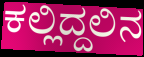
ಕಲ್ಲಿದ್ದಲಿನ